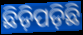
ଛିଡ଼ିପଡ଼ିଛି